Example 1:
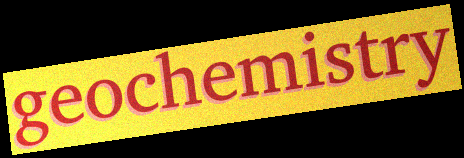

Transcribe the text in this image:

geochemistry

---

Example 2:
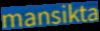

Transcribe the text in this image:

mansikta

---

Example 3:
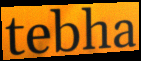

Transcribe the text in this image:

tebha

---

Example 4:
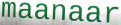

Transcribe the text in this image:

maanaar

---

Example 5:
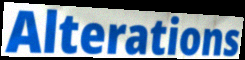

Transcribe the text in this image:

Alterations